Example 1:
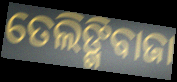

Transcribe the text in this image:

ତେଲିଙ୍ଗିବାଜା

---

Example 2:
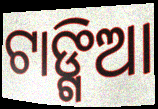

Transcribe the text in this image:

ଟାଙ୍ଗିଆ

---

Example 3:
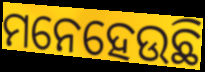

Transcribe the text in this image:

ମନେହେଉଛି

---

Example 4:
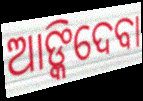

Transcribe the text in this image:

ଆଙ୍କିଦେବା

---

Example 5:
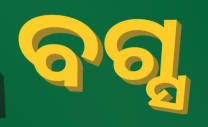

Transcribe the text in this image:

ବଗ୍ସ